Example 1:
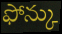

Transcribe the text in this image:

ఫోన్కు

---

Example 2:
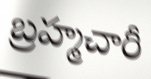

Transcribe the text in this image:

బ్రహ్మచారీ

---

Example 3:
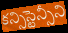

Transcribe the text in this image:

కన్సిస్టెన్సీని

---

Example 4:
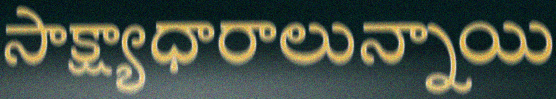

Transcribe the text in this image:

సాక్ష్యాధారాలున్నాయి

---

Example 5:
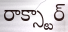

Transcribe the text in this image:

రాక్స్టార్